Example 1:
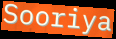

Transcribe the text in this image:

Sooriya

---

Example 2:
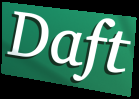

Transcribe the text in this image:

Daft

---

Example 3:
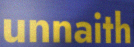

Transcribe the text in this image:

unnaith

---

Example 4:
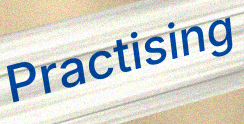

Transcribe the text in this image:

Practising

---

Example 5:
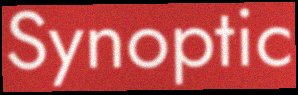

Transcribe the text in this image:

Synoptic